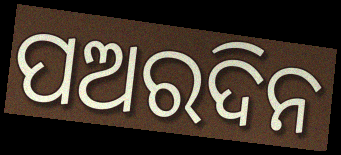
ପଅରଦିନ